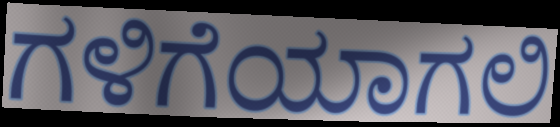
ಗಳಿಗೆಯಾಗಲಿ